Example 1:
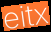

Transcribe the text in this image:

eitx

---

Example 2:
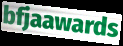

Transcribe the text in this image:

bfjaawards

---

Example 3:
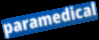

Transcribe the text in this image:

paramedical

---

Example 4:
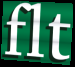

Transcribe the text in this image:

flt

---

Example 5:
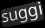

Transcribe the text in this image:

suggi